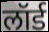
लॉर्ड